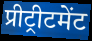
प्रीट्रीटमेंट